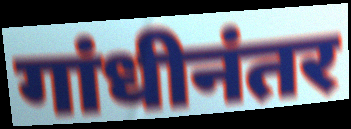
गांधीनंतर